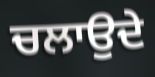
ਚਲਾਉਦੇ